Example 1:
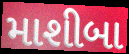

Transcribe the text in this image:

માશીબા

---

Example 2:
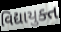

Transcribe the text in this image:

વિદ્યાયુક્ત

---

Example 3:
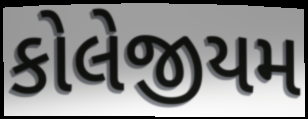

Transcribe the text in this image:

કોલેજીયમ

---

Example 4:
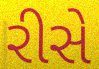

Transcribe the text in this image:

રીસે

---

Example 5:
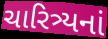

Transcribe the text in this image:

ચારિત્ર્યનાં